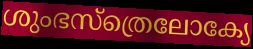
ശുംഭസ്ത്രെലോക്യേ